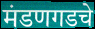
मंडणगडचे